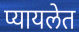
प्यायलेत